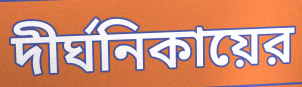
দীর্ঘনিকায়ের